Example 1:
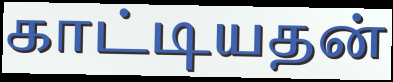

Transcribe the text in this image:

காட்டியதன்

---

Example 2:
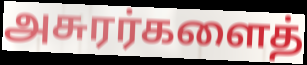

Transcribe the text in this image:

அசுரர்களைத்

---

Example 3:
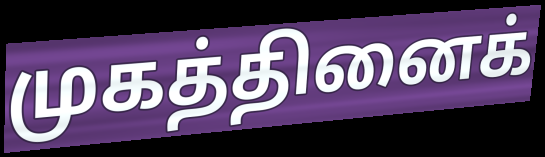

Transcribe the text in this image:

முகத்தினைக்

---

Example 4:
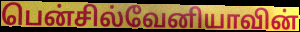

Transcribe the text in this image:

பென்சில்வேனியாவின்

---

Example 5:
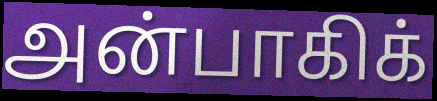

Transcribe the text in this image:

அன்பாகிக்